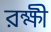
রক্ষী